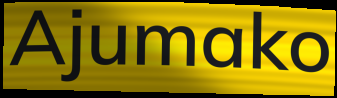
Ajumako